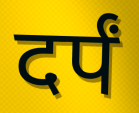
दर्पं